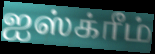
ஐஸ்க்ரீம்